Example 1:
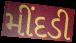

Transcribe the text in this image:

મીંદડી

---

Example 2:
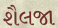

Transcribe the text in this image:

શૈલજા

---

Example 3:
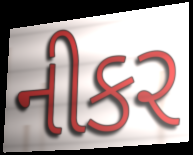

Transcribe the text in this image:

નીકર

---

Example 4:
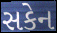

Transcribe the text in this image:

સકેન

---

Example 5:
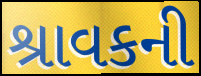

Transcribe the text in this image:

શ્રાવકની